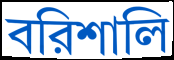
বরিশালি